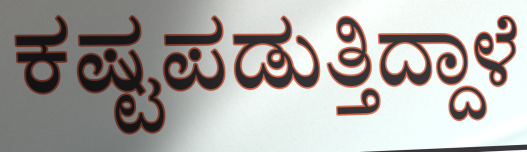
ಕಷ್ಟಪಡುತ್ತಿದ್ದಾಳೆ